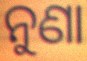
ନୁଣା